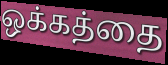
ஒக்கத்தை